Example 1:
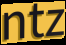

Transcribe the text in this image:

ntz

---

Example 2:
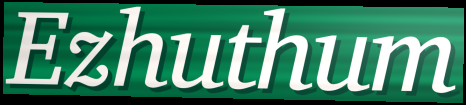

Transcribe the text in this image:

Ezhuthum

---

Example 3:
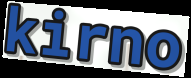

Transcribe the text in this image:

kirno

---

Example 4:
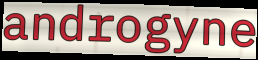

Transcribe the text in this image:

androgyne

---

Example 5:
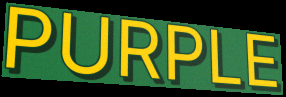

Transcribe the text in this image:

PURPLE